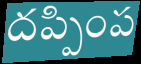
దప్పింప